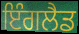
ਇੰਗਲੈਡ